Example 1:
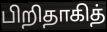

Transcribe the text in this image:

பிறிதாகித்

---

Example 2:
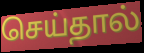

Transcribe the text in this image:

செய்தால்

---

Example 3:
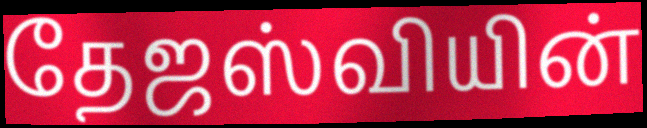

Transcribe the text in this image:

தேஜஸ்வியின்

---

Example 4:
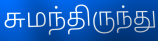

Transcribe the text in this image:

சுமந்திருந்து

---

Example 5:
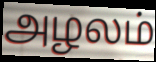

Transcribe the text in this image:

அழலம்